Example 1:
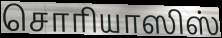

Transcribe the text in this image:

சொரியாஸிஸ்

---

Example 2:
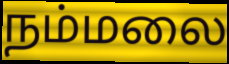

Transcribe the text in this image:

நம்மலை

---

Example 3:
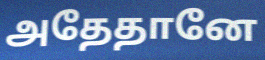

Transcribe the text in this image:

அதேதானே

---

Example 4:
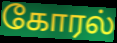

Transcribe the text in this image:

கோரல்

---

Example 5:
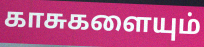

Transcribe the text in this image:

காசுகளையும்